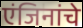
एंजिनांचे